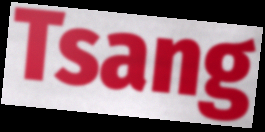
Tsang